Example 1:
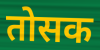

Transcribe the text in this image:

तोसक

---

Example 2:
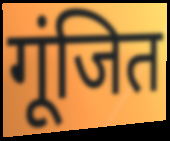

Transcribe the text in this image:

गूंजित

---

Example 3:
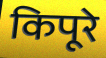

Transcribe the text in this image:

किपूरे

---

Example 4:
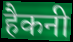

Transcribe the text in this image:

हैकनी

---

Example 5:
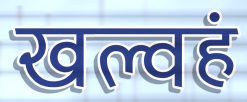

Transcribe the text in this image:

खल्वहं